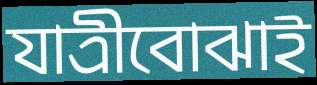
যাত্রীবোঝাই